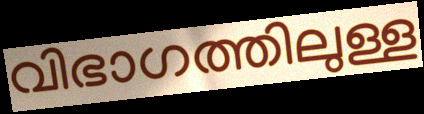
വിഭാഗത്തിലുള്ള